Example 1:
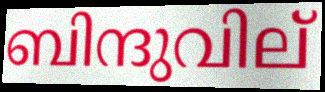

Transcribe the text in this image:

ബിന്ദുവില്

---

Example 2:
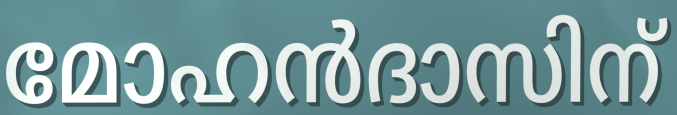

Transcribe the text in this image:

മോഹൻദാസിന്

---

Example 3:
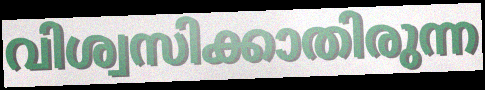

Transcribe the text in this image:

വിശ്വസിക്കാതിരുന്ന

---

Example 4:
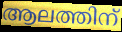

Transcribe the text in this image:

ആലത്തിന്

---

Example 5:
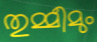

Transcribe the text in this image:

തുമ്മീമും